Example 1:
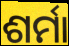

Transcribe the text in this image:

ଶର୍ମା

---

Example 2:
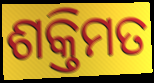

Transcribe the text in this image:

ଶକ୍ତିମତ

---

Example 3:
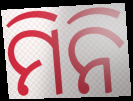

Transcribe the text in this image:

ମିନି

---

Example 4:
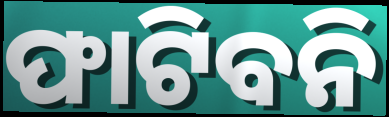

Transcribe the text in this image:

ଫାଟିବନି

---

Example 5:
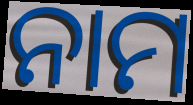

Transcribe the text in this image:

ନାମ